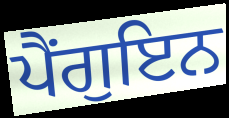
ਪੈਂਗੁਇਨ